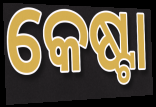
କେଷ୍ଟା